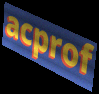
acprof